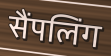
सैंपलिंग